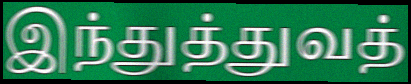
இந்துத்துவத்